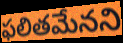
ఫలితమేనని